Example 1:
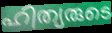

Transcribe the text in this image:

ഹിത്യരുടെ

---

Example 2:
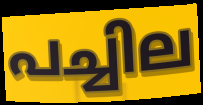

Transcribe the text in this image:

പച്ചില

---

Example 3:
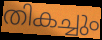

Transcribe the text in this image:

തികച്ചും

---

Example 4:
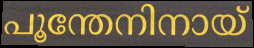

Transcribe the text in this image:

പൂന്തേനിനായ്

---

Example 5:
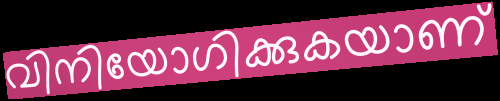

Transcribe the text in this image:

വിനിയോഗിക്കുകയാണ്